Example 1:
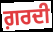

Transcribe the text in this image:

ਗ਼ਰਦੀ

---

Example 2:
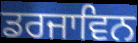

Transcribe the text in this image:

ਡਰਜਾਵਿਨ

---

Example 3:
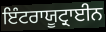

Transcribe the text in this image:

ਇੰਟਰਾਯੂਟ੍ਰਾਈਨ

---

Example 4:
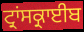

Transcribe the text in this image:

ਟ੍ਰਾਂਸਕ੍ਰਾਈਬ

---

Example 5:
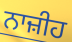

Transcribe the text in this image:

ਨਾਜ਼ੀਹ